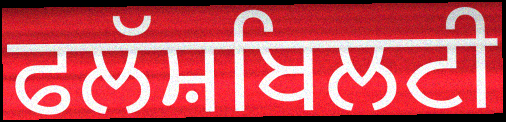
ਫਲੱਸ਼ਬਿਲਟੀ